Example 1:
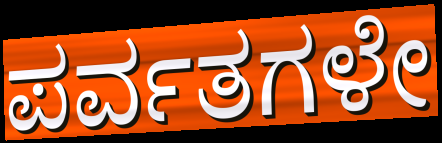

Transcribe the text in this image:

ಪರ್ವತಗಳೇ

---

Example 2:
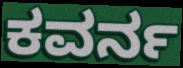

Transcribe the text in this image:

ಕವರ್ನ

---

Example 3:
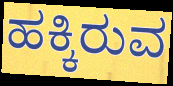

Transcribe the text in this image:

ಹಕ್ಕಿರುವ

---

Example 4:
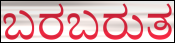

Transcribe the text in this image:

ಬರಬರುತ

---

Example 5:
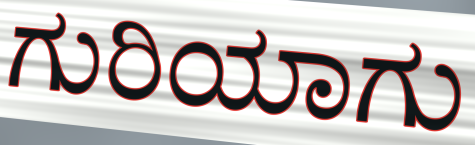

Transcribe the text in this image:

ಗುರಿಯಾಗು